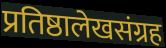
प्रतिष्ठालेखसंग्रह